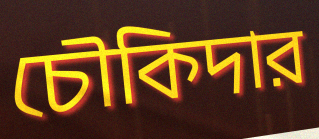
চৌকিদার